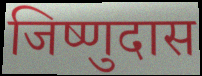
जिष्णुदास